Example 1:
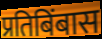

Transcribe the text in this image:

प्रतिबिंबास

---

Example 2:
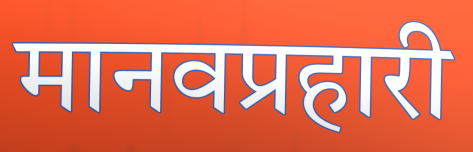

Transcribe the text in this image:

मानवप्रहारी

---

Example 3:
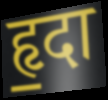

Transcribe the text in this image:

हृ॒दा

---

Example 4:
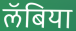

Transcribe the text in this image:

लॅबिया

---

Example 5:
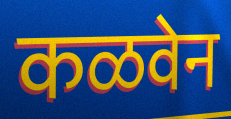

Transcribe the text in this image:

कळवेन